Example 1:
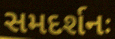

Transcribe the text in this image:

સમદર્શનઃ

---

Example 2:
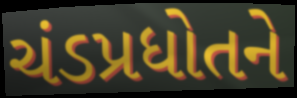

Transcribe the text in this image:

ચંડપ્રધોતને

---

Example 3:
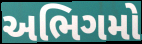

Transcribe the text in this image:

અભિગમો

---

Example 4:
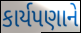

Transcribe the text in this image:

કાર્યપણાને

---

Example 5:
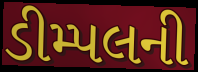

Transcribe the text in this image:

ડીમ્પલની